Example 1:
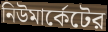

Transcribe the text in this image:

নিউমার্কেটের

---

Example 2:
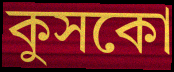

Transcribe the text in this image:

কুসকো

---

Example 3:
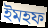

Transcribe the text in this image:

ইমহফ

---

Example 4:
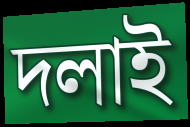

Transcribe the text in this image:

দলাই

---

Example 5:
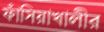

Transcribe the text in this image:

ফাঁসিয়াখালীর